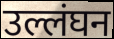
उल्लंघन